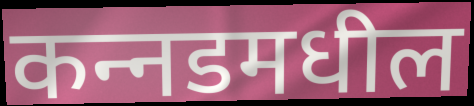
कन्नडमधील